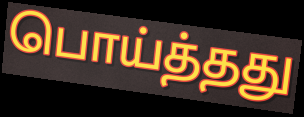
பொய்த்தது